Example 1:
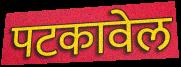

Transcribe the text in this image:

पटकावेल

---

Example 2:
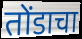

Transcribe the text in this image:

तोंडाचा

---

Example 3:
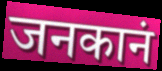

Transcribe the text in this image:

जनकानं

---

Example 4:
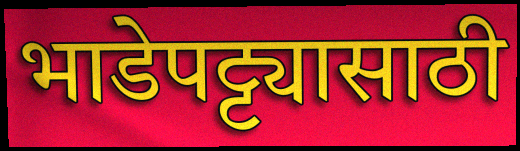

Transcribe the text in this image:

भाडेपट्ट्यासाठी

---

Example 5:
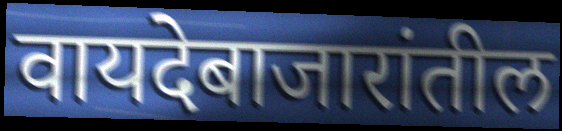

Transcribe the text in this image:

वायदेबाजारांतील